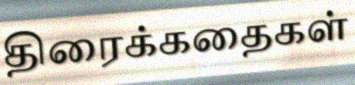
திரைக்கதைகள்